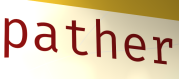
pather